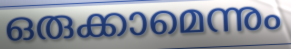
ഒരുക്കാമെന്നും